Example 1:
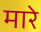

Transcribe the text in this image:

मारे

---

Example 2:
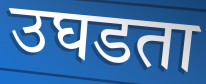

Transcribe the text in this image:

उघडता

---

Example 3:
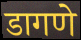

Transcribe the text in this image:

डागणे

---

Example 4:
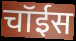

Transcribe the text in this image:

चॉईस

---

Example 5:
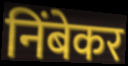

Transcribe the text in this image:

निंबेकर